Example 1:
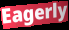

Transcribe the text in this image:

Eagerly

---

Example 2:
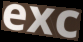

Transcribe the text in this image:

exc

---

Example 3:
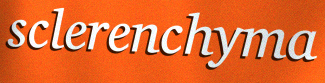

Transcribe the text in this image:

sclerenchyma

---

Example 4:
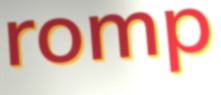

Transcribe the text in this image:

romp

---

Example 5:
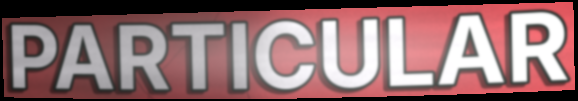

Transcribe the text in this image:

PARTICULAR